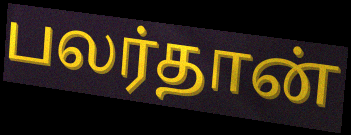
பலர்தான்